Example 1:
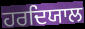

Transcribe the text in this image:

ਹਰਦਿਯਾਲ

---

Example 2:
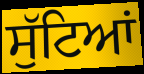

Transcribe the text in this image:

ਸੁੱਟਿਆਂ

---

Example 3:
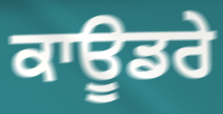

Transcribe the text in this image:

ਕਾਊਡਰੇ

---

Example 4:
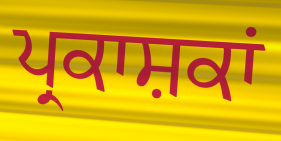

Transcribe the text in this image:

ਪ੍ਰਕਾਸ਼ਕਾਂ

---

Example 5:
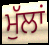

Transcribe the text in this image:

ਮੁੱਲਾਂ